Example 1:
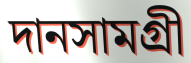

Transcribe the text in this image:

দানসামগ্রী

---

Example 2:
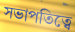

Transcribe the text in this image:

সভাপতিত্বে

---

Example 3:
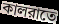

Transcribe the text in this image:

কালরাতে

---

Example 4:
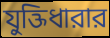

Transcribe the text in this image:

যুক্তিধারার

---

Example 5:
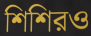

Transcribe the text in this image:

শিশিরও